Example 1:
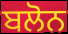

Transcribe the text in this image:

ਬਲੋਨ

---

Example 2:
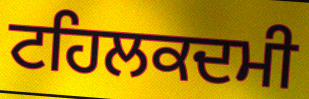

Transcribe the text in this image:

ਟਹਿਲਕਦਮੀ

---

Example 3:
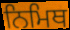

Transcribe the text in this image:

ਨਿਮਿਥ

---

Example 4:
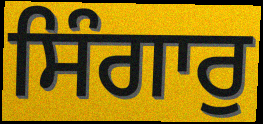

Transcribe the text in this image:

ਸਿੰਗਾਰੁ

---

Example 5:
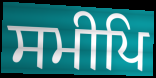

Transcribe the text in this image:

ਸਮੀਪਿ